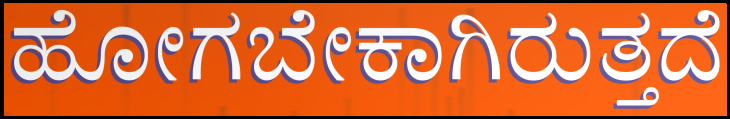
ಹೋಗಬೇಕಾಗಿರುತ್ತದೆ